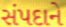
સંપદાને